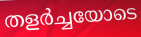
തളർച്ചയോടെ